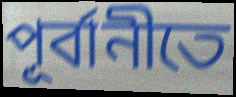
পূর্বানীতে